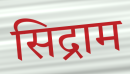
सिद्राम